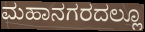
ಮಹಾನಗರದಲ್ಲೂ